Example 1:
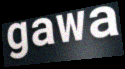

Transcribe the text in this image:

gawa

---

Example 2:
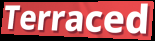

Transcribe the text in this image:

Terraced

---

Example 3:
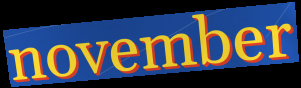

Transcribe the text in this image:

november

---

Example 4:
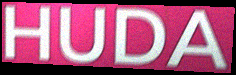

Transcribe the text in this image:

HUDA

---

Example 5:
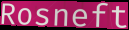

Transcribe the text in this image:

Rosneft